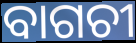
ବାଗଚୀ